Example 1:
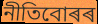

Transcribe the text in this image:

নীতিবোৰৰ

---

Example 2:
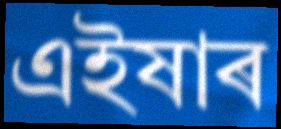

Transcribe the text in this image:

এইষাৰ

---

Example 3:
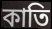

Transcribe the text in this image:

কাতি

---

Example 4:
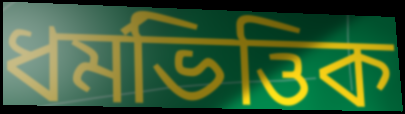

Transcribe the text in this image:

ধৰ্মভিত্তিক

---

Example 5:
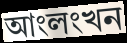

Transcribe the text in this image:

আংলংখন